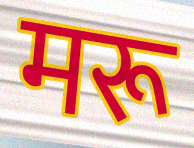
मरू